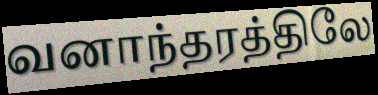
வனாந்தரத்திலே